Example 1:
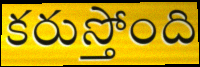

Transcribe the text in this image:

కరుస్తోంది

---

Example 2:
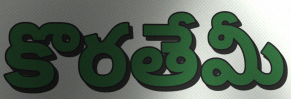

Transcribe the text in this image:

కొరతేమీ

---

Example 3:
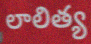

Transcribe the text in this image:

లాలిత్య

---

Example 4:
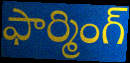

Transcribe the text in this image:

ఫార్మింగ్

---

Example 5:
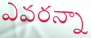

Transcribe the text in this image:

ఎవరన్నా